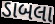
ડાબલા